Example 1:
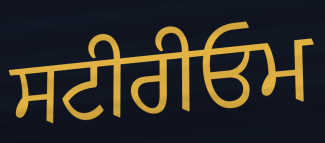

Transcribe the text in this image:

ਸਟੀਰੀਓਮ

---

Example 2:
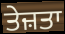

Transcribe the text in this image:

ਤੇਜ਼ਤਾ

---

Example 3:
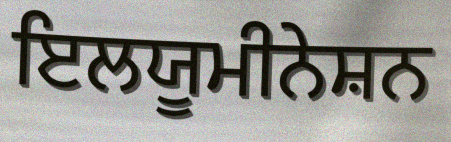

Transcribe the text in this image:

ਇਲਯੂਮੀਨੇਸ਼ਨ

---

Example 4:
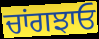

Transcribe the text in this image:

ਚਾਂਗਝਾਓ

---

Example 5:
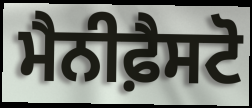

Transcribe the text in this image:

ਮੈਨੀਫ਼ੈਸਟੋ